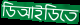
ডিআইডিতে